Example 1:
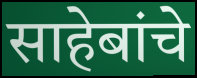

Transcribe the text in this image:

साहेबांचे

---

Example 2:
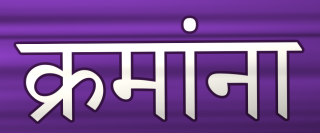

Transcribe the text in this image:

क्रमांना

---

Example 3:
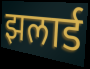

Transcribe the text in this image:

झलार्ड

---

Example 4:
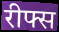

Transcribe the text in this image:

रीफ्स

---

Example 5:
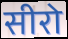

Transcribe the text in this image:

सीरो